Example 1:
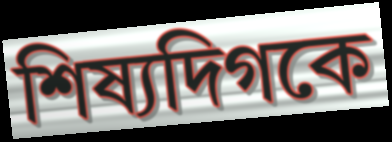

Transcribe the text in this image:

শিষ্যদিগকে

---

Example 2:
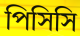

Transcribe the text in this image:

পিসিসি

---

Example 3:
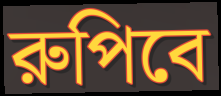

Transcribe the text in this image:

রুপিবে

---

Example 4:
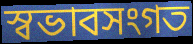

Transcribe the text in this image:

স্বভাবসংগত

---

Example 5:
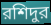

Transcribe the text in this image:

রশিদুর